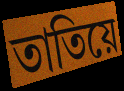
তাতিয়ে